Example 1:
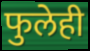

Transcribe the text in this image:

फुलेही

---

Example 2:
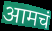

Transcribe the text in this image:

आमचं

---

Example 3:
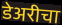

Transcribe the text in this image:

डेअरीचा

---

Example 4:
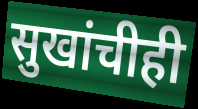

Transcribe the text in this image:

सुखांचीही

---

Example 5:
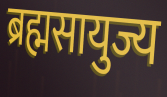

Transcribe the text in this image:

ब्रह्मसायुज्य